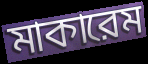
মাকারেম